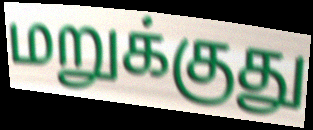
மறுக்குது